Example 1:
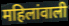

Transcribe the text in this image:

महिलांवाली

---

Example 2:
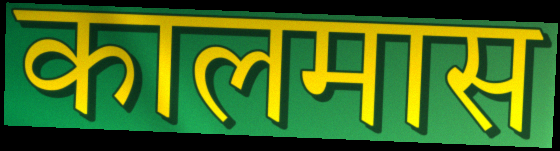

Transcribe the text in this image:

कालमास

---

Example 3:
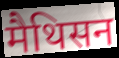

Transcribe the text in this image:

मैथिसन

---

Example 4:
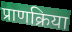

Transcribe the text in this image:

प्राणक्रिया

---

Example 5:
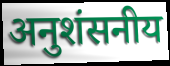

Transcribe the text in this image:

अनुशंसनीय